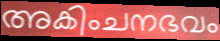
അകിംചനഭവം